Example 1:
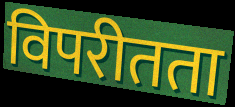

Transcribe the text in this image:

विपरीतता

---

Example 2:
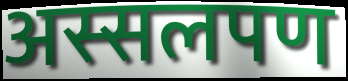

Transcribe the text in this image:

अस्सलपण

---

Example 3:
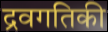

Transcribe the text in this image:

द्रवगतिकी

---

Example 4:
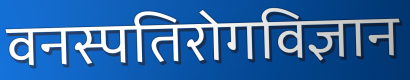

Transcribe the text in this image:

वनस्पतिरोगविज्ञान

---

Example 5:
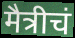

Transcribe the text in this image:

मैत्रीचं